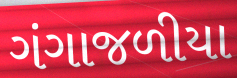
ગંગાજળીયા